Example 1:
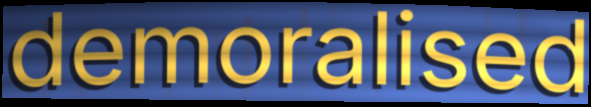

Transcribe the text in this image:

demoralised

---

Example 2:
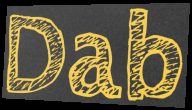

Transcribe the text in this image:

Dab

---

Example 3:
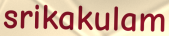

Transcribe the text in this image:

srikakulam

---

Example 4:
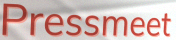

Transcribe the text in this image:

Pressmeet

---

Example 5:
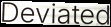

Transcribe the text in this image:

Deviated